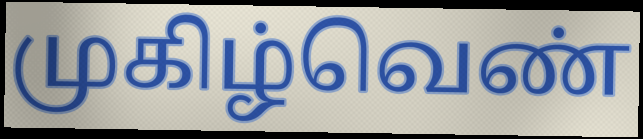
முகிழ்வெண்